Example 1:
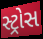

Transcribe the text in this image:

સ્ટ્રોસ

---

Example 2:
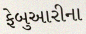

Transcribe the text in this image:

ફેબુઆરીના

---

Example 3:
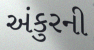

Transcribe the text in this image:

અંકુરની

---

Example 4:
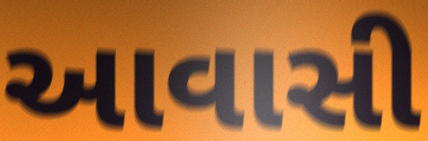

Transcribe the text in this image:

આવાસી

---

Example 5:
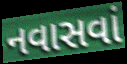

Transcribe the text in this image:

નવાસવાં